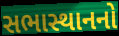
સભાસ્થાનનો